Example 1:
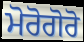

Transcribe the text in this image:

ਮੋਰੋਗੋਰੋ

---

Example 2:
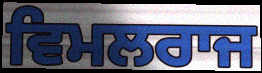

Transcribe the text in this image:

ਵਿਮਲਰਾਜ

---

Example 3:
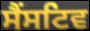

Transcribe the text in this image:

ਸੈਂਸਟਿਵ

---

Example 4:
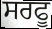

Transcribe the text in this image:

ਸਰਫੂ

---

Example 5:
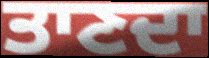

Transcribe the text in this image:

ਤਾਣਦਾ